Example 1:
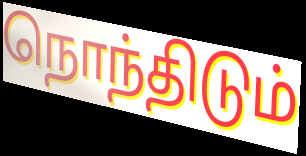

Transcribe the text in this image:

நொந்திடும்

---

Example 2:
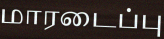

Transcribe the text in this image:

மாரடைப்பு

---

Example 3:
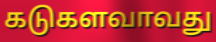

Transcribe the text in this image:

கடுகளவாவது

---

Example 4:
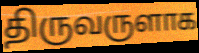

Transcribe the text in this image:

திருவருளாக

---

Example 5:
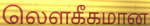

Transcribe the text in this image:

லெளகீகமான